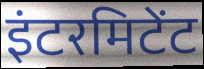
इंटरमिटेंट